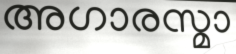
അഗാരസ്മാ